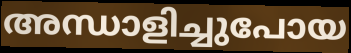
അന്ധാളിച്ചുപോയ